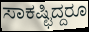
ಸಾಕಷ್ಟಿದ್ದರೂ